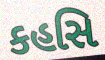
કહસિ